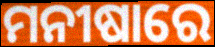
ମନୀଷାରେ